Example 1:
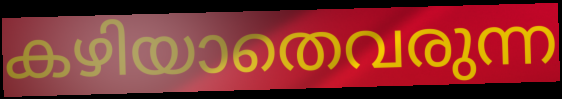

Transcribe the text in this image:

കഴിയാതെവരുന്ന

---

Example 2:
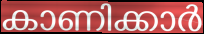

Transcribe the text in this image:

കാണിക്കാർ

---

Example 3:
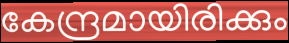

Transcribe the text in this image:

കേന്ദ്രമായിരിക്കും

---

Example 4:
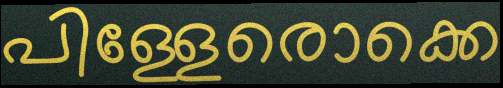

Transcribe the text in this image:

പിള്ളേരൊക്കെ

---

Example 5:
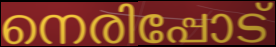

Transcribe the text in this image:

നെരിപ്പോട്